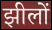
झीलों